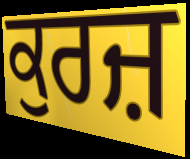
ਕੁਰਜ਼